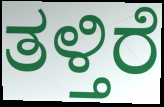
ತಳ್ತಿರೆ